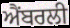
ਐਂਬਰਲੀ